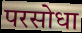
परसोधा